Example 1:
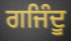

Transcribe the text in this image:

ਗਜਿੰਦੂ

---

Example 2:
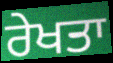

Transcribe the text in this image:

ਰੇਖਤਾ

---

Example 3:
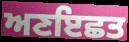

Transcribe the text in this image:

ਅਣਇਛਤ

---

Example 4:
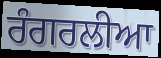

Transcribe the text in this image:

ਰੰਗਰਲੀਆ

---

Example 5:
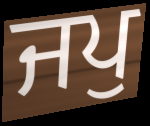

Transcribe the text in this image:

ਜਪੁ